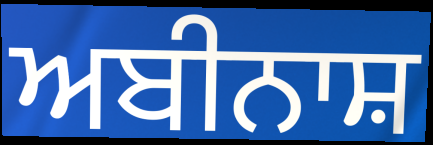
ਅਬੀਨਾਸ਼